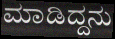
ಮಾಡಿದ್ದನು